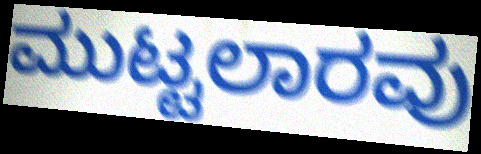
ಮುಟ್ಟಲಾರವು